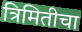
त्रिमितीचा